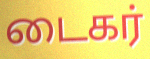
டைகர்